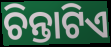
ଚିନ୍ତାଟିଏ